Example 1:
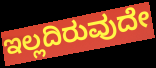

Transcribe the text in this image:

ಇಲ್ಲದಿರುವುದೇ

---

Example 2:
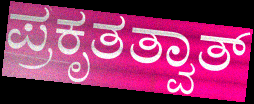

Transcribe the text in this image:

ಪ್ರಕೃತತ್ವಾತ್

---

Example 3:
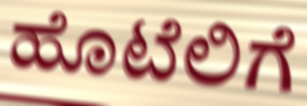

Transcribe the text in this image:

ಹೊಟೆಲಿಗೆ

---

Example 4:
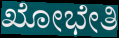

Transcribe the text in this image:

ಖೋಭೇತಿ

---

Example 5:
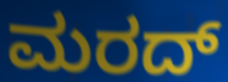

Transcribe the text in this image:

ಮರದ್